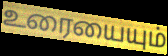
உரையையும்